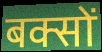
बक्सों